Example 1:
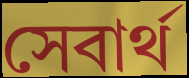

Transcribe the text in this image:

সেবার্থ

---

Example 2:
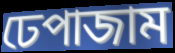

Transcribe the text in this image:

ঢেপাজাম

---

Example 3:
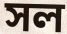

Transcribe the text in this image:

সল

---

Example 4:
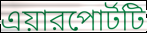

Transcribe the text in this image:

এয়ারপোর্টটি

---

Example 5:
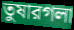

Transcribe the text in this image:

তুষারগলা